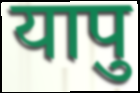
यापु